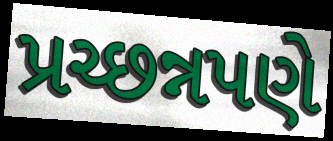
પ્રચ્છન્નપણે